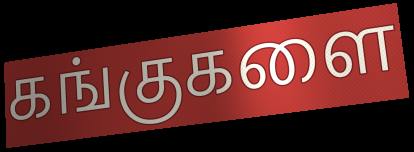
கங்குகளை